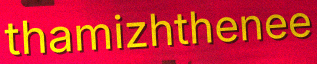
thamizhthenee